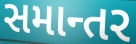
સમાન્તર